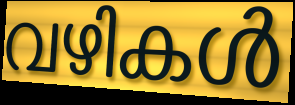
വഴികൾ